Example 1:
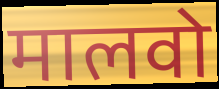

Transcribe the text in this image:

मालवो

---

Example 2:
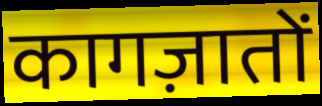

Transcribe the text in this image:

कागज़ातों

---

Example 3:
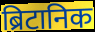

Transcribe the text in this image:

ब्रिटानिक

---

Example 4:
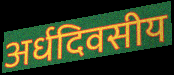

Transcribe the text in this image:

अर्धदिवसीय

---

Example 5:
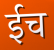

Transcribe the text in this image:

ईच